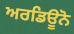
ਅਰਡਿਊਨੋ